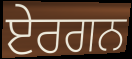
ਏਰਗਨ